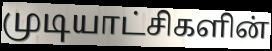
முடியாட்சிகளின்